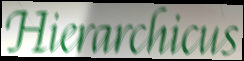
Hierarchicus